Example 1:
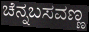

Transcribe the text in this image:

ಚೆನ್ನಬಸವಣ್ಣ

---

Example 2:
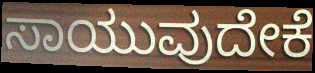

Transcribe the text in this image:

ಸಾಯುವುದೇಕೆ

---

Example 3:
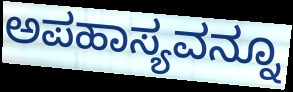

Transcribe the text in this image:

ಅಪಹಾಸ್ಯವನ್ನೂ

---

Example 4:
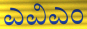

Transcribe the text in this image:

ಎವಿಎಂ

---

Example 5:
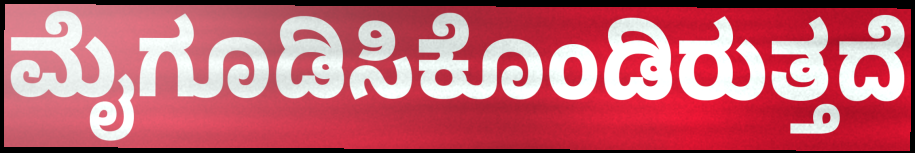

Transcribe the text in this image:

ಮೈಗೂಡಿಸಿಕೊಂಡಿರುತ್ತದೆ